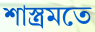
শাস্ত্রমতে